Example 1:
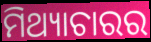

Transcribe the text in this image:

ମିଥ୍ୟାଚାରର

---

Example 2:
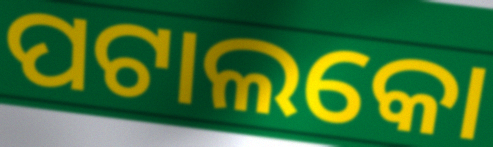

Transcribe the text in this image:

ପଟାଲକୋ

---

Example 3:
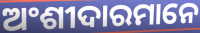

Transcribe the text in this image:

ଅଂଶୀଦାରମାନେ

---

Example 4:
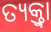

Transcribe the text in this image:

ତ୍ୟକ୍ତ୍ୱା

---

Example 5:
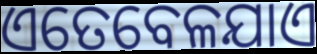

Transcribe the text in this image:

ଏତେବେଳଯାଏ